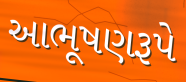
આભૂષણરૂપે